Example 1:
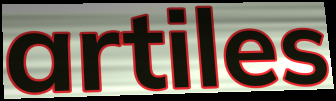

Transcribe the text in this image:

artiles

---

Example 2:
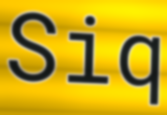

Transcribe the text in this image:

Siq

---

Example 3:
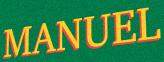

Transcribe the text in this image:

MANUEL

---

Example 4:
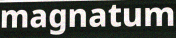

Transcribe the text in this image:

magnatum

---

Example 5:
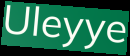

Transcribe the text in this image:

Uleyye